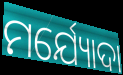
ମର୍ଯ୍ୟୋଦା